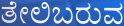
ತೇಲಿಬರುವ